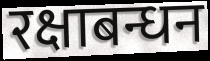
रक्षाबन्धन